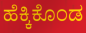
ಹೆಕ್ಕಿಕೊಂಡ